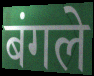
बंगले